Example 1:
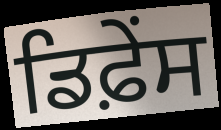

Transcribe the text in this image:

ਡਿਫ਼ੇਂਸ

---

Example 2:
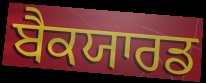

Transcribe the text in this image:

ਬੈਕਯਾਰਡ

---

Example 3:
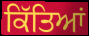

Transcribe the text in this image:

ਕਿੱਤਿਆਂ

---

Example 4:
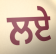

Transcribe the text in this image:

ਲਏ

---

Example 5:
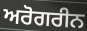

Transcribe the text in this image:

ਅਰੋਗਰੀਨ